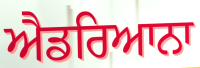
ਐਡਰਿਆਨਾ